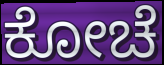
ಕೋಚೆ